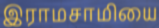
இராமசாமியை